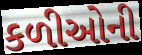
કળીઓની